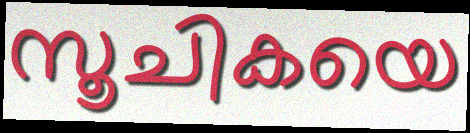
സൂചികയെ